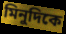
মিনুদিকে